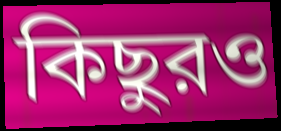
কিছুরও